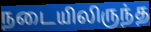
நடையிலிருந்த